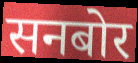
सनबोर